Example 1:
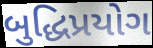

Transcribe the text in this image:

બુદ્ધિપ્રયોગ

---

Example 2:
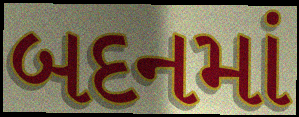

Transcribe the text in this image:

બદનમાં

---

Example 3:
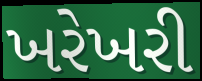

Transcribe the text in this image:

ખરેખરી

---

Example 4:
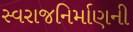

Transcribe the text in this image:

સ્વરાજનિર્માણની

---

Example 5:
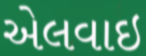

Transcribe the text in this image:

એલવાઇ